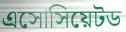
এসোসিয়েটড